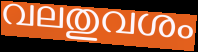
വലതുവശം